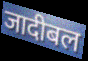
जादीबल